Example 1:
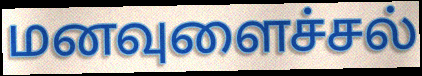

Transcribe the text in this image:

மனவுளைச்சல்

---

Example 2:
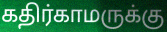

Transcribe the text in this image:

கதிர்காமருக்கு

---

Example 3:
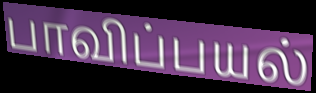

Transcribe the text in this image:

பாவிப்பயல்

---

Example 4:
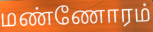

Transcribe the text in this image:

மண்ணோரம்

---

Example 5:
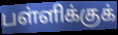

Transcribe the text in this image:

பள்ளிக்குக்